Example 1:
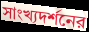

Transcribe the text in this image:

সাংখ্যদর্শনের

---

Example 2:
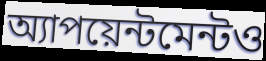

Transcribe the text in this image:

অ্যাপয়েন্টমেন্টও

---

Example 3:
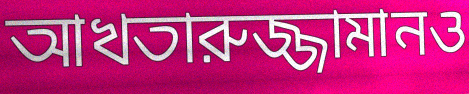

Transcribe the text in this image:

আখতারুজ্জামানও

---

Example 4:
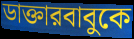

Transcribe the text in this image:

ডাক্তারবাবুকে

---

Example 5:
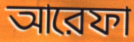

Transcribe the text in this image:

আরেফা